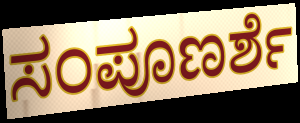
ಸಂಪೂಣರ್ಶೆ